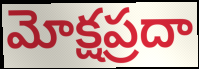
మోక్షప్రదా